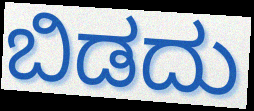
ಬಿಡದು